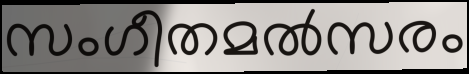
സംഗീതമൽസരം